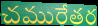
చమురేతర